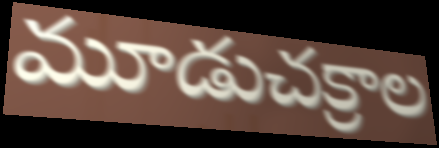
మూడుచక్రాల